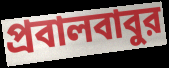
প্রবালবাবুর